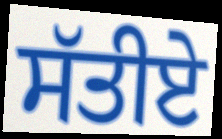
ਸੱਤੀਏ